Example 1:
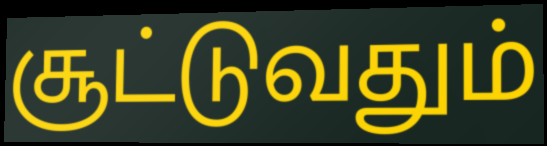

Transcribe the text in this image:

சூட்டுவதும்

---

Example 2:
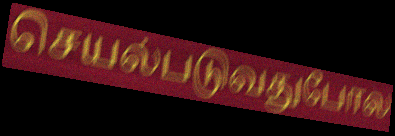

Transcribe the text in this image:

செயல்படுவதுபோல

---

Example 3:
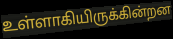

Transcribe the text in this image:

உள்ளாகியிருக்கின்றன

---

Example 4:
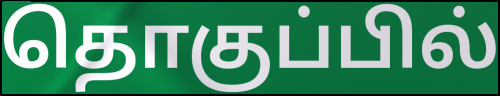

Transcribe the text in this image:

தொகுப்பில்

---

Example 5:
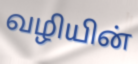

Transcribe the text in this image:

வழியின்